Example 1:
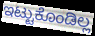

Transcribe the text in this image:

ಇಟ್ಟುಕೊಂಡಿಲ್ಲ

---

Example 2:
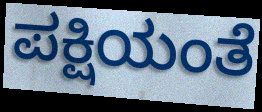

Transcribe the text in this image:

ಪಕ್ಷಿಯಂತೆ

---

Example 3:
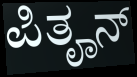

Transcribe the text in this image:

ಪಿತೄನ್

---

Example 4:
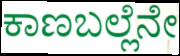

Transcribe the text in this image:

ಕಾಣಬಲ್ಲೆನೇ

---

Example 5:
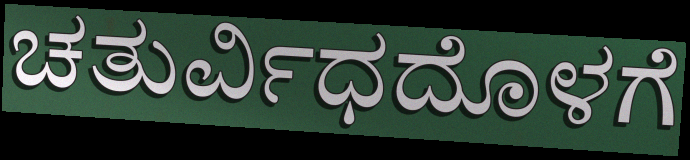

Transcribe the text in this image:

ಚತುರ್ವಿಧದೊಳಗೆ